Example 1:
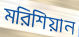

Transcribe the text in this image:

মরিশিয়ান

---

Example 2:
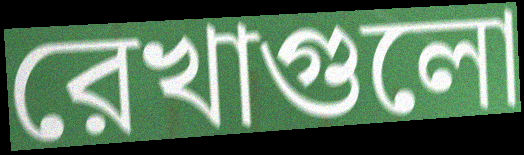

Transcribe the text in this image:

রেখাগুলো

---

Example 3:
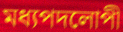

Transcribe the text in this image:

মধ্যপদলোপী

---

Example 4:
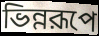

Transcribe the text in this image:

ভিন্নরূপে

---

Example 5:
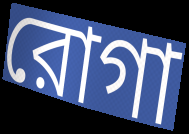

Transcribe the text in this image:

রোগা